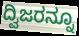
ದ್ವಿಜರನ್ನೂ